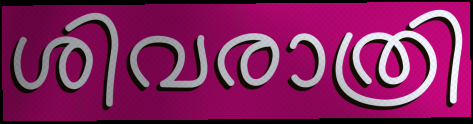
ശിവരാത്രി